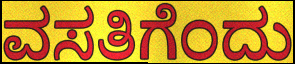
ವಸತಿಗೆಂದು